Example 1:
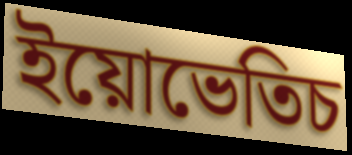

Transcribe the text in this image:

ইয়োভেতিচ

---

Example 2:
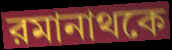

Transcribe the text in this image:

রমানাথকে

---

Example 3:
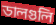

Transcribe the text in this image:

ডালগুলি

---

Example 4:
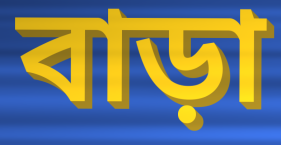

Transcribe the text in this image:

বাড়া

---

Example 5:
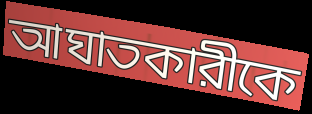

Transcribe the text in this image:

আঘাতকারীকে